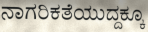
ನಾಗರಿಕತೆಯುದ್ದಕ್ಕೂ